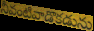
నీవంటివాడొకడును